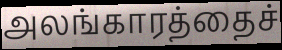
அலங்காரத்தைச்